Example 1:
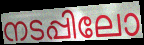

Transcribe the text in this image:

നടപ്പിലോ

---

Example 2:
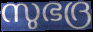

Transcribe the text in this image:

സുഭദ്ര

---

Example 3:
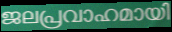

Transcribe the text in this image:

ജലപ്രവാഹമായി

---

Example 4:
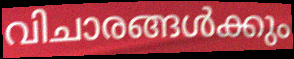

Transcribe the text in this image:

വിചാരങ്ങൾക്കും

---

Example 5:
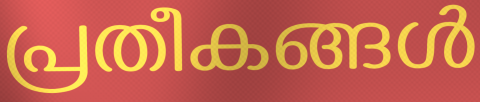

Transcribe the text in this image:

പ്രതീകങ്ങൾ